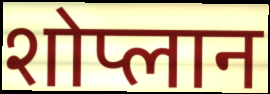
शोप्लान